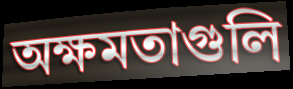
অক্ষমতাগুলি